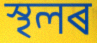
স্থলৰ